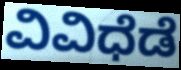
ವಿವಿಧೆಡೆ